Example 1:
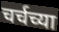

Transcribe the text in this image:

चर्चच्या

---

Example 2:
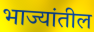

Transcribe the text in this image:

भाज्यांतील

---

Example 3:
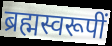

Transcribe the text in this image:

ब्रह्मस्वरूपीं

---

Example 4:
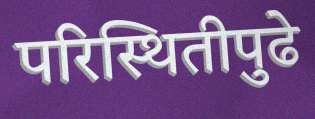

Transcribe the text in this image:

परिस्थितीपुढे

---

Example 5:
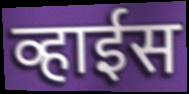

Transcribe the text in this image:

व्हाईस